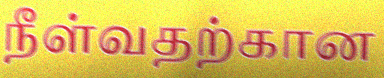
நீள்வதற்கான